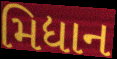
મિદ્યાન